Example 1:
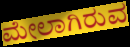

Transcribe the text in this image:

ಮೇಲಾಗಿರುವ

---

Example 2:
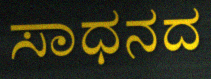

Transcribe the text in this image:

ಸಾಧನದ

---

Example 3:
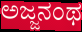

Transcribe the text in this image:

ಅಜ್ಜನಂಥ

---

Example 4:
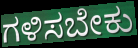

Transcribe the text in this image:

ಗಳಿಸಬೇಕು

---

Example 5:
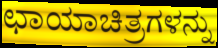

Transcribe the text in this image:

ಛಾಯಾಚಿತ್ರಗಳನ್ನು